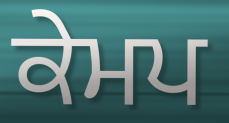
ਕੇਮਪ